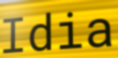
Idia